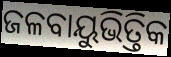
ଜଳବାୟୁଭିତ୍ତିକ